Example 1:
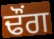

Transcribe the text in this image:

ਢੌਂਗ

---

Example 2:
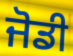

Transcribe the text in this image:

ਜੋਡੀ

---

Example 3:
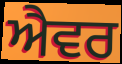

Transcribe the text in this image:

ਐਵਰ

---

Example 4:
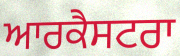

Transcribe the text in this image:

ਆਰਕੈਸਟਰਾ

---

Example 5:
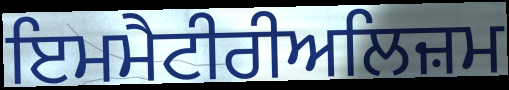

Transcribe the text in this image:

ਇਮਮੈਟੀਰੀਅਲਿਜ਼ਮ